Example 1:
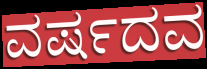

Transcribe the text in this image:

ವರ್ಷದವ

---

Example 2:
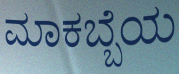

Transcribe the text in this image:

ಮಾಕಬ್ಬೆಯ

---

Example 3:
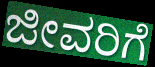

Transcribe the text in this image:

ಜೀವರಿಗೆ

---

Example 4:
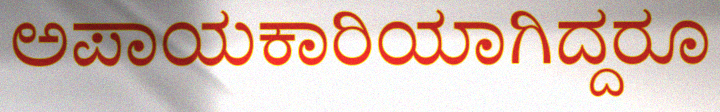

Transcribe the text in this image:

ಅಪಾಯಕಾರಿಯಾಗಿದ್ದರೂ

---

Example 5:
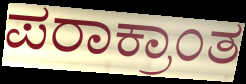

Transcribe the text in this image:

ಪರಾಕ್ರಾಂತ